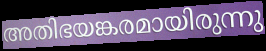
അതിഭയങ്കരമായിരുന്നു